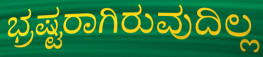
ಭ್ರಷ್ಟರಾಗಿರುವುದಿಲ್ಲ